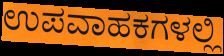
ಉಪವಾಹಕಗಳಲ್ಲಿ